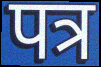
पत्र